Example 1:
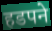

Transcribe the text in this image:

हडपने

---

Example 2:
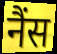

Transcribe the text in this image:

नैंस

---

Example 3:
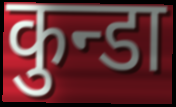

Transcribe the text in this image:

कुन्डा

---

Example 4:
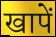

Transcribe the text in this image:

खापें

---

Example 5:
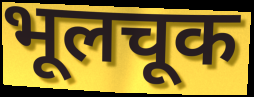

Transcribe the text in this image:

भूलचूक